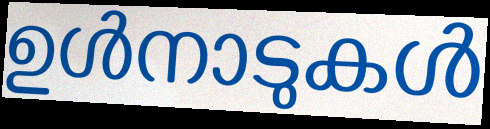
ഉൾനാടുകൾ